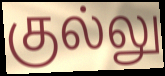
குல்லு